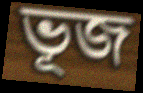
ভূজ